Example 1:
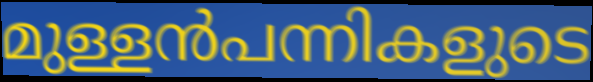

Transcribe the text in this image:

മുള്ളൻപന്നികളുടെ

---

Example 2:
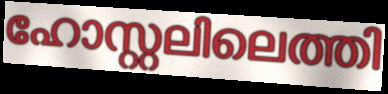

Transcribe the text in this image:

ഹോസ്റ്റലിലെത്തി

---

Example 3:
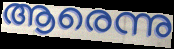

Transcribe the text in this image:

ആരെന്നു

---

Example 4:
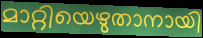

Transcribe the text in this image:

മാറ്റിയെഴുതാനായി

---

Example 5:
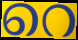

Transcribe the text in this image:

റെ